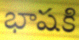
భాషకి